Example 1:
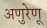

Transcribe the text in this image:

अणुरेणू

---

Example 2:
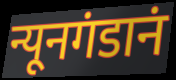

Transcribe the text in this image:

न्यूनगंडानं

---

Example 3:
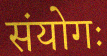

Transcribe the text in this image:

संयोगः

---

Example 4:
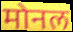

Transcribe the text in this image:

मोनल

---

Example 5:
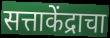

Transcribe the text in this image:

सत्ताकेंद्राचा